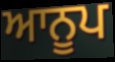
ਆਨੂਪ